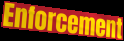
Enforcement